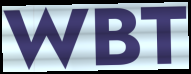
WBT